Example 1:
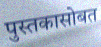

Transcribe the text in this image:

पुस्तकासोबत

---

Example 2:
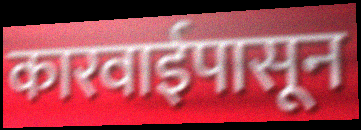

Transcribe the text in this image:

कारवाईपासून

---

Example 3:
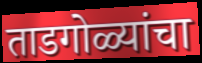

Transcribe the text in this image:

ताडगोळ्यांचा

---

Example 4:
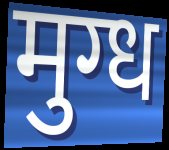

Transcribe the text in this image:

मुग्ध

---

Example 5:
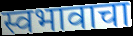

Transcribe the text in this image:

स्वभावाचा